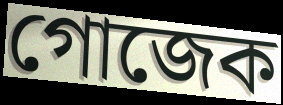
গোজেক